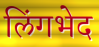
लिंगभेद